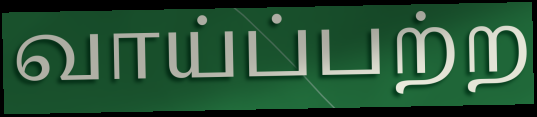
வாய்ப்பற்ற